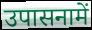
उपासनामें